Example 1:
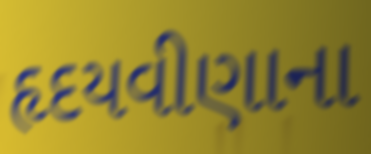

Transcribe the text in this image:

હૃદયવીણાના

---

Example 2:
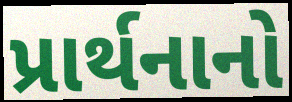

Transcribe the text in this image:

પ્રાર્થનાનો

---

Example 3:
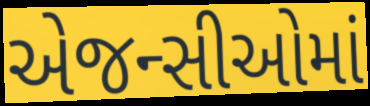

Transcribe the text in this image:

એજન્સીઓમાં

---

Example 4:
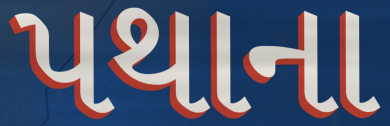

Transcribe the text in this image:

પથાના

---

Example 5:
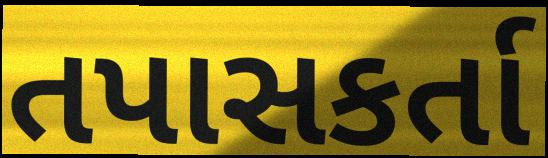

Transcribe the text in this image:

તપાસકર્તા